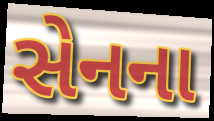
સેનના